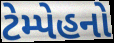
ટેમ્પેહનો